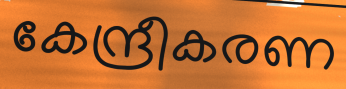
കേന്ദ്രീകരണ